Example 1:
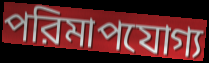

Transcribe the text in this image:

পরিমাপযোগ্য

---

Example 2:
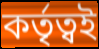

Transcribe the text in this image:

কর্তৃত্বই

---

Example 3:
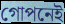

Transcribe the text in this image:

গোপনেই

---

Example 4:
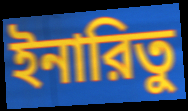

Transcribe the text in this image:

ইনারিতু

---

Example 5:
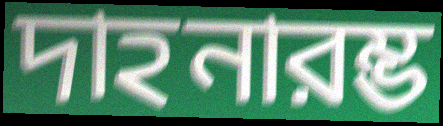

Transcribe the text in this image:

দাহনারম্ভ